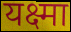
यक्ष्मा